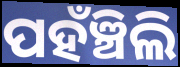
ପହଁଞ୍ଚିଲି